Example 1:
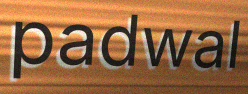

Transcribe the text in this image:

padwal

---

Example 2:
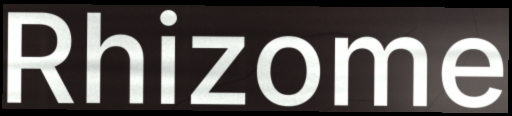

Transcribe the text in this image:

Rhizome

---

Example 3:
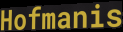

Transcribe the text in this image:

Hofmanis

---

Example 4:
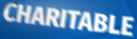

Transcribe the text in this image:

CHARITABLE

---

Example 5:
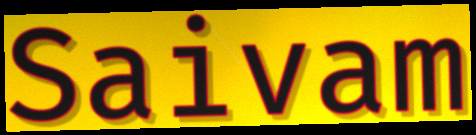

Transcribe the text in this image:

Saivam